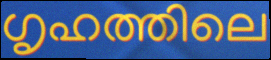
ഗൃഹത്തിലെ